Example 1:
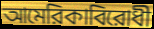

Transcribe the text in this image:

আমেরিকাবিরোধী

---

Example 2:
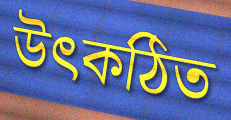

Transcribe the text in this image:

উৎকঠিত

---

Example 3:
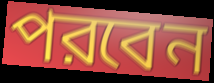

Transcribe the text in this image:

পরবেন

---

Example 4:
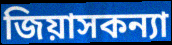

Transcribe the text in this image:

জিয়াসকন্যা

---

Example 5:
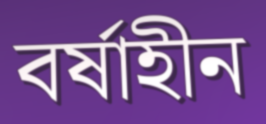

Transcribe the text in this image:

বর্ষাহীন